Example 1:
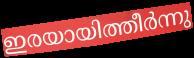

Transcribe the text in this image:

ഇരയായിത്തീർന്നു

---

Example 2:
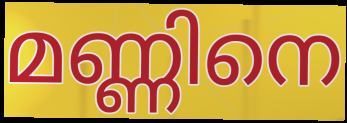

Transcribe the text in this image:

മണ്ണിനെ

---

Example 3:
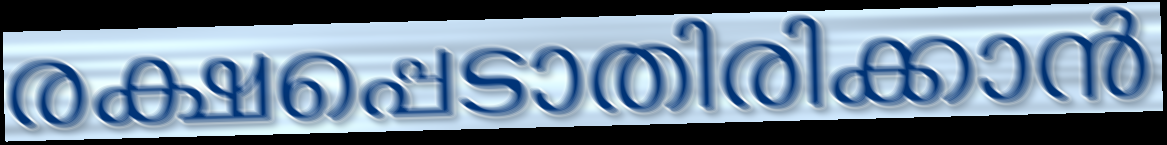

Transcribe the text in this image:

രക്ഷപ്പെടാതിരിക്കാൻ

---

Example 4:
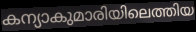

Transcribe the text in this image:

കന്യാകുമാരിയിലെത്തിയ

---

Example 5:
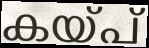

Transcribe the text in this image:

കയ്പ്